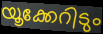
യൂക്കേറിടും